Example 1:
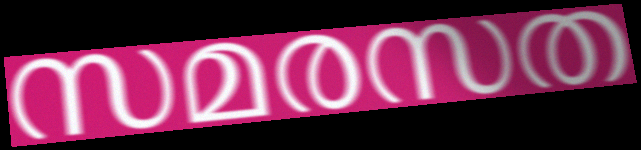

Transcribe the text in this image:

സമരസത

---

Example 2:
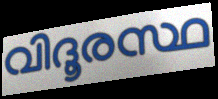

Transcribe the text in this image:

വിദൂരസ്ഥ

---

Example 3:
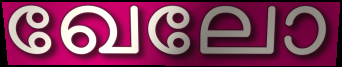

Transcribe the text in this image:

ഖേലോ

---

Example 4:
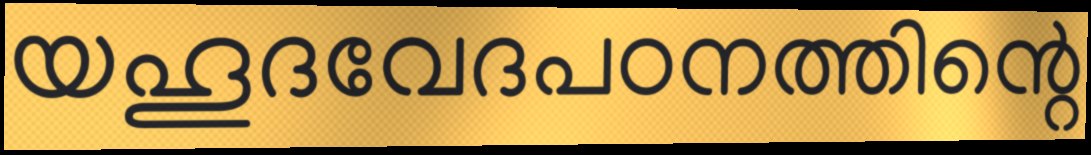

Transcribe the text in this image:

യഹൂദവേദപഠനത്തിന്റെ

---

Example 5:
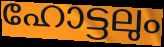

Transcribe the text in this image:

ഹോട്ടലും